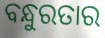
ବନ୍ଧୁରତାର